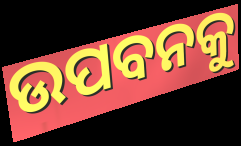
ଉପବନକୁ